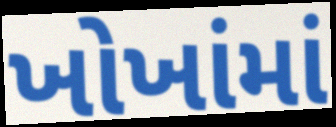
ખોખાંમાં